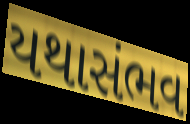
યથાસંભવ